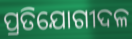
ପ୍ରତିଯୋଗୀଦଳ